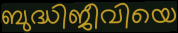
ബുദ്ധിജീവിയെ